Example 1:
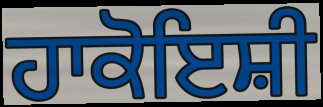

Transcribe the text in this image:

ਹਾਕੋਇਸ਼ੀ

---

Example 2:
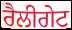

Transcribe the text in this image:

ਰੈਲੀਗੇਟ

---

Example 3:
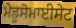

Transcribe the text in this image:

ਮੇਡੂਸੋਮਾਈਸੇਟ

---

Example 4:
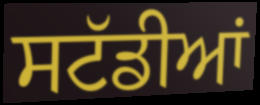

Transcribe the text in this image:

ਸਟੱਡੀਆਂ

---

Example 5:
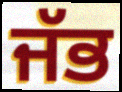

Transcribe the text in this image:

ਜੱਭ